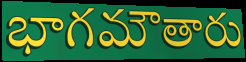
భాగమౌతారు